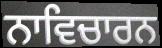
ਨਾਵਿਚਾਰਨ